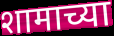
शामाच्या